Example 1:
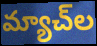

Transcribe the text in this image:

మ్యాచ్‌ల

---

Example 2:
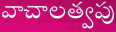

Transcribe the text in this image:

వాచాలత్వపు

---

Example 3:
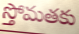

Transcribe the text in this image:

స్తోమతకు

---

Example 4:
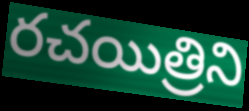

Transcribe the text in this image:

రచయిత్రిని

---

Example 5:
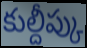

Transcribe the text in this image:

కుల్దీప్కు